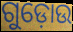
ଗୁଡ଼ୋଉ